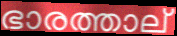
ഭാരത്താല്